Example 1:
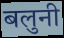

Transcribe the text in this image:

बलुनी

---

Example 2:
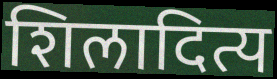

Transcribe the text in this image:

शिलादित्य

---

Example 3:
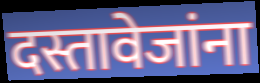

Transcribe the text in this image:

दस्तावेजांना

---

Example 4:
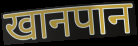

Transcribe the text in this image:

खानपान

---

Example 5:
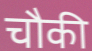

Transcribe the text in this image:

चौकी